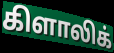
கிளாலிக்